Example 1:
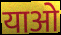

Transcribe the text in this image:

याओ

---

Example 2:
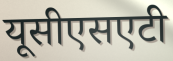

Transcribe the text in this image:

यूसीएसएटी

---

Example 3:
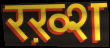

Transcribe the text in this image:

रख़्श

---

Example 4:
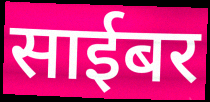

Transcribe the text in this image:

साईबर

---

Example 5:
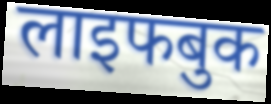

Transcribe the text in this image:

लाइफबुक